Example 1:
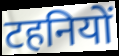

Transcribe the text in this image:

टहनियों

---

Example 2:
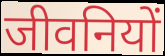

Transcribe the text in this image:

जीवनियों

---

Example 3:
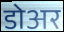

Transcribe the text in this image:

डोअर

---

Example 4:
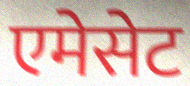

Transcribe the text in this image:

एमेसेट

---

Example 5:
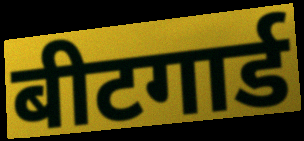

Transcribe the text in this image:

बीटगार्ड